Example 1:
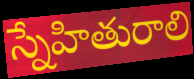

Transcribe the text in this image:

స్నేహితురాలి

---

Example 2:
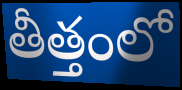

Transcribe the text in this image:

తీత్తంలో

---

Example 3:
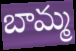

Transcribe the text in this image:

బామ్మ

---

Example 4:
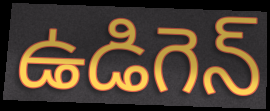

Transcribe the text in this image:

ఉడిగెన్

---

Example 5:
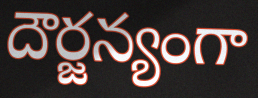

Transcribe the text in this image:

దౌర్జన్యంగా